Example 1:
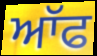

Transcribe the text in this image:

ਆੱਫ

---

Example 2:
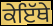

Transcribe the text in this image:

ਕੇਇੱਥੇ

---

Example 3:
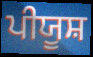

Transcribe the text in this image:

ਪੀਯੂਸ਼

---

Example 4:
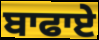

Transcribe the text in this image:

ਬਾਫਾਏ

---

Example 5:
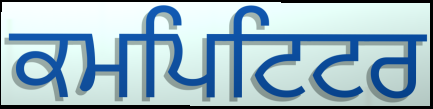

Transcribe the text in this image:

ਕਮਪਿਟਿਟਰ